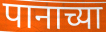
पानाच्या